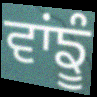
ਵਾਂਙੂੰ